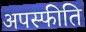
अपस्फीति